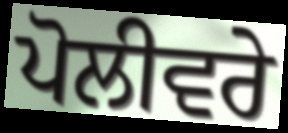
ਪੋਲੀਵਰੇ